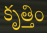
కృత్తిం